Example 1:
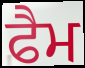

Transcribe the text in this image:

ਫੈਮ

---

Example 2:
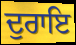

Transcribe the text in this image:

ਦੁਰਾਇ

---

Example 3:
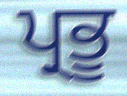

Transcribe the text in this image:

ਪ੍ਰ੍ਰਭੂ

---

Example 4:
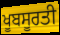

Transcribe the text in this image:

ਖੂਬਸੂਰਤੀ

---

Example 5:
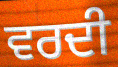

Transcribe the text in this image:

ਵਰਦੀ